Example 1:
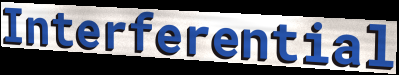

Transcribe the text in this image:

Interferential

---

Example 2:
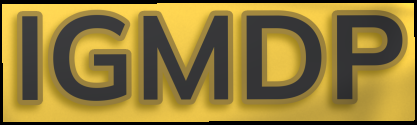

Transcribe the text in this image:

IGMDP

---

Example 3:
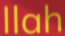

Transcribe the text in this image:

Ilah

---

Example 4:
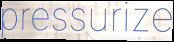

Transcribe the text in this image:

pressurize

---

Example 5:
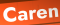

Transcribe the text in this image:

Caren